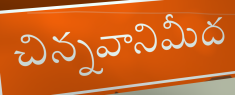
చిన్నవానిమీద